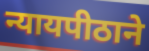
न्यायपीठाने